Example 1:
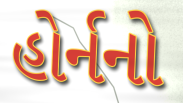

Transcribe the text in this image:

હોર્નનો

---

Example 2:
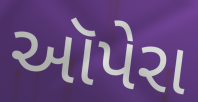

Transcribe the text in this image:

ઑપેરા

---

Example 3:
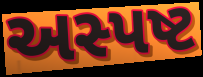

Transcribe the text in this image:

અસ્પષ્ટ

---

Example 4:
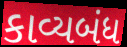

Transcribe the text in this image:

કાવ્યબંધ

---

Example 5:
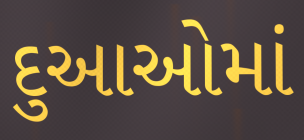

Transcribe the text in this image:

દુઆઓમાં